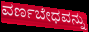
ವರ್ಣಬೇಧವನ್ನು